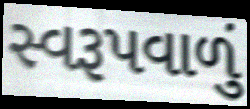
સ્વરૂપવાળું